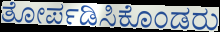
ತೋರ್ಪಡಿಸಿಕೊಂಡರು